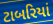
ટાબરિયાં